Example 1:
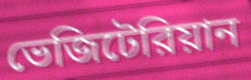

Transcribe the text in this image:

ভেজিটেরিয়ান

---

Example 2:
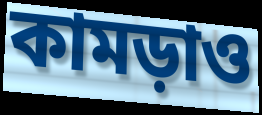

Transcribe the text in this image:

কামড়াও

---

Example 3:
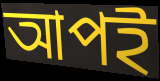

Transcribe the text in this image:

আপই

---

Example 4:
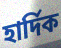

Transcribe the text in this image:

হার্দিক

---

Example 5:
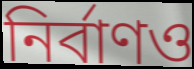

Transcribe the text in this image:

নির্বাণও